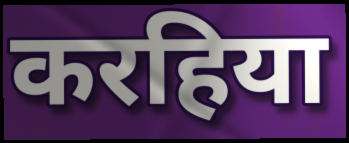
करहिया